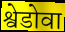
श्वेडोवा